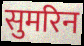
सुमरिन